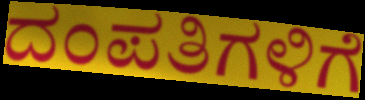
ದಂಪತಿಗಳಿಗೆ